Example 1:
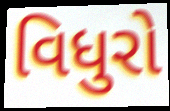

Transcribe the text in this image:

વિધુરો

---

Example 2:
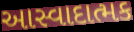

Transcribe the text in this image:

આસ્વાદાત્મક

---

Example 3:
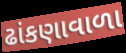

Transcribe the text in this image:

ઢાંકણાવાળા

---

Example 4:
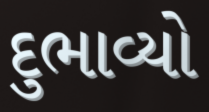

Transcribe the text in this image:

દુભાવ્યો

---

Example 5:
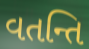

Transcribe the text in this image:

વતન્તિ